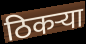
ठिकर्‍या